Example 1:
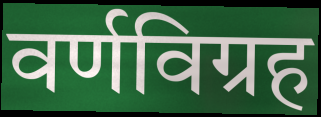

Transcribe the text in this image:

वर्णविग्रह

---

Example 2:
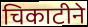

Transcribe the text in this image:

चिकाटीने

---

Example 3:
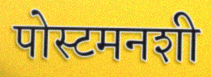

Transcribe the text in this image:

पोस्टमनशी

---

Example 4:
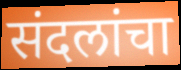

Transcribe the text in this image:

संदलांचा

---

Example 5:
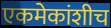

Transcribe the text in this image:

एकमेकांशीच